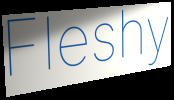
Fleshy